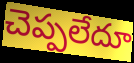
చెప్పలేదూ